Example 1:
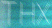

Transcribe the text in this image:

THX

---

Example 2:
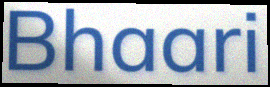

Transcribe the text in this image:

Bhaari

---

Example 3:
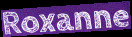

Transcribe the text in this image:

Roxanne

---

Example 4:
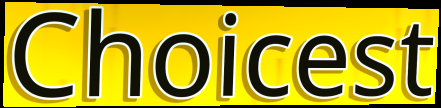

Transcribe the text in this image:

Choicest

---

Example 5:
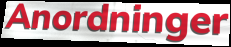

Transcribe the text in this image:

Anordninger